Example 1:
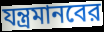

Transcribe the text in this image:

যন্ত্রমানবের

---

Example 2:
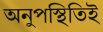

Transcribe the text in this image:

অনুপস্থিতিই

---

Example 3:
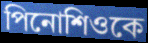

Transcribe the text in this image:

পিনোশিওকে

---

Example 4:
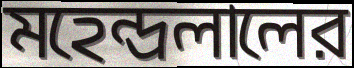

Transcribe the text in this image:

মহেন্দ্রলালের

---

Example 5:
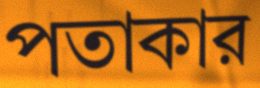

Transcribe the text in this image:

পতাকার